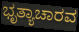
ಭೃತ್ಯಾಚಾರವ